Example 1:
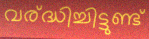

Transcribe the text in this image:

വര്ദ്ധിച്ചിട്ടുണ്ട്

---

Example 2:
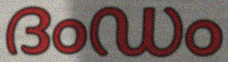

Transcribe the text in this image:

ദംഡം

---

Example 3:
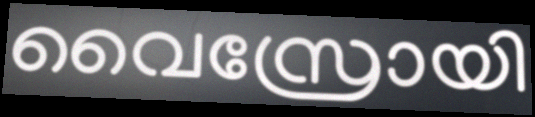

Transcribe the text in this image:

വൈസ്രോയി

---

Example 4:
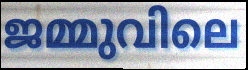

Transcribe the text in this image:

ജമ്മുവിലെ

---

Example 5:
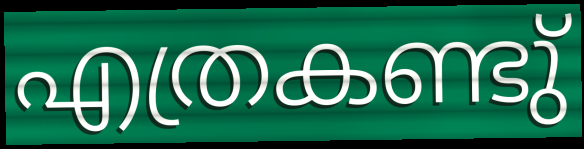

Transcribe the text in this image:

എത്രകണ്ടു്